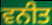
ਵਨੀਤ